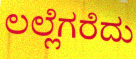
ಲಲ್ಲೆಗರೆದು